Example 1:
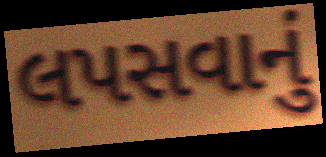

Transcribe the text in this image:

લપસવાનું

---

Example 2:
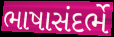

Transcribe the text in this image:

ભાષાસંદર્ભે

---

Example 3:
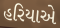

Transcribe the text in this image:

હરિયાએ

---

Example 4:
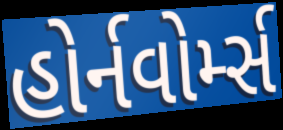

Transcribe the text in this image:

હોર્નવોર્મ્સ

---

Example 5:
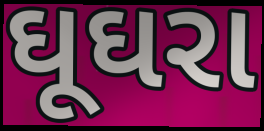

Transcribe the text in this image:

ઘૂઘરા